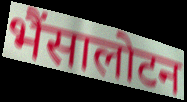
भैंसालोटन